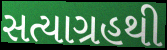
સત્યાગ્રહથી